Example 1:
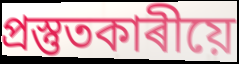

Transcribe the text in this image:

প্ৰস্তুতকাৰীয়ে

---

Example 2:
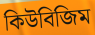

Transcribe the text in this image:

কিউবিজিম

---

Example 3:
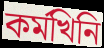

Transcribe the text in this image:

কৰ্মখিনি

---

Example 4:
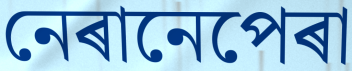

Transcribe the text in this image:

নেৰানেপেৰা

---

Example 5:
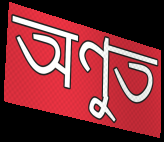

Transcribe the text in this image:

অণুত